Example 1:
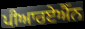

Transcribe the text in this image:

ਪੀਆਰਏਐੱਨ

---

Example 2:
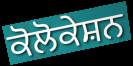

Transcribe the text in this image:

ਕੋਲੋਕੇਸ਼ਨ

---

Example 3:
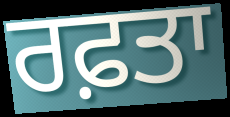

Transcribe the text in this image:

ਰਫ਼ਤਾ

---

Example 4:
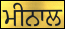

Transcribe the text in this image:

ਮੀਨਾਲ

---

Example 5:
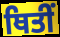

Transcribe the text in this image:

ਥਿਤੀਂ